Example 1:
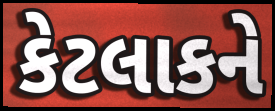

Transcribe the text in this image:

કેટલાકને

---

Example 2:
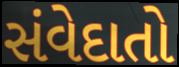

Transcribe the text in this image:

સંવેદાતો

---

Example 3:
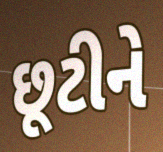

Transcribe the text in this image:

છૂટીને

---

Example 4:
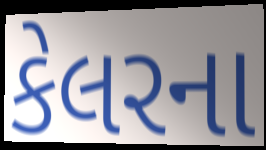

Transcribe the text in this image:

કેલરના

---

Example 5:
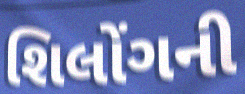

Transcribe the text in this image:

શિલોંગની